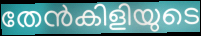
തേൻകിളിയുടെ